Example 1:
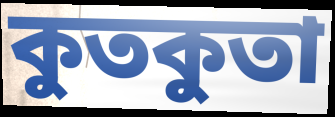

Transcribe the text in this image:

কুতকুতা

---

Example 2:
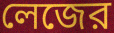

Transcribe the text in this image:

লেজের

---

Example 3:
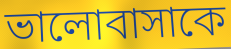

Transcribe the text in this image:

ভালোবাসাকে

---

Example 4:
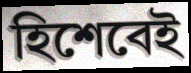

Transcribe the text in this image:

হিশেবেই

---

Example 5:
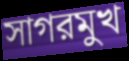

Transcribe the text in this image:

সাগরমুখ